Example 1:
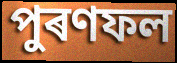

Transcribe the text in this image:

পুৰণফল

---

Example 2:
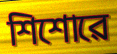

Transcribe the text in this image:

শিশোৱে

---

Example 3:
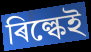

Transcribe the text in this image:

ৰিল্কেই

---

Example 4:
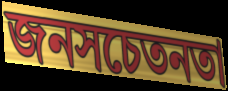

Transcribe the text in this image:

জনসচেতনতা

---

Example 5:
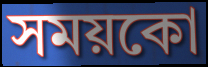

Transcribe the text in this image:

সময়কো